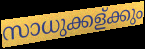
സാധുക്കള്ക്കും